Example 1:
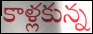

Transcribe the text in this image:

కాళ్లకున్న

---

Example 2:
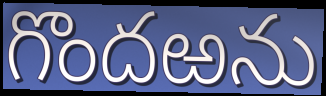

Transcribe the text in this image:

గొందఱను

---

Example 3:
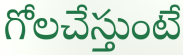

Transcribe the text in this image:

గోలచేస్తుంటే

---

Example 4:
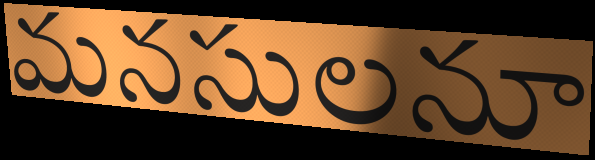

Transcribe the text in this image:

మనసులనూ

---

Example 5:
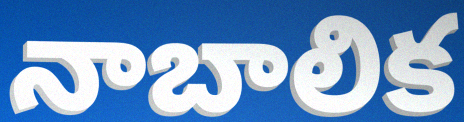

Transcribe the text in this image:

నాబాలిక